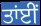
ਤਾਂਈਂ